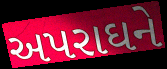
અપરાઘને